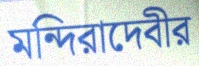
মন্দিরাদেবীর